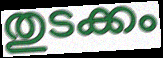
തുടക്കം